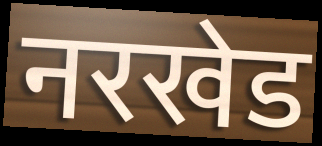
नरखेड